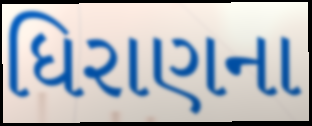
ધિરાણના